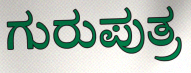
ಗುರುಪುತ್ರ